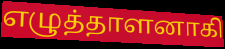
எழுத்தாளனாகி